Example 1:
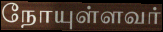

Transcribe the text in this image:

நோயுள்ளவர்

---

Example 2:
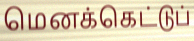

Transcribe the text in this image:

மெனக்கெட்டுப்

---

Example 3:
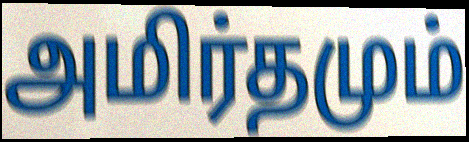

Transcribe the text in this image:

அமிர்தமும்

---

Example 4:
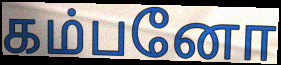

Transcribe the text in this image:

கம்பனோ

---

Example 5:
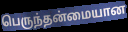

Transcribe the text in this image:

பெருந்தன்மையான